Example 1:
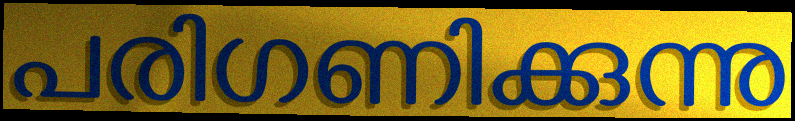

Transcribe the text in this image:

പരിഗണിക്കുന്നു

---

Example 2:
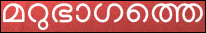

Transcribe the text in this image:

മറുഭാഗത്തെ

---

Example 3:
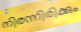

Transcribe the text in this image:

നിരന്നിരിക്കും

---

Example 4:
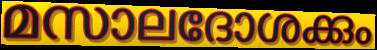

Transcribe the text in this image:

മസാലദോശക്കും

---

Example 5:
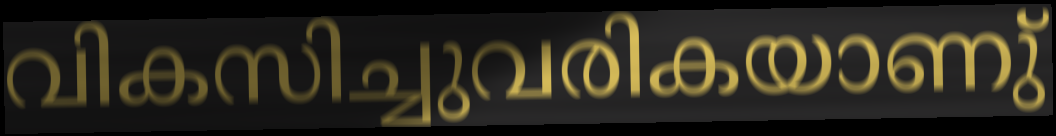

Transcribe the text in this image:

വികസിച്ചുവരികയാണു്